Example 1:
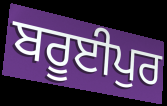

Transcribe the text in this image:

ਬਰੂਈਪੁਰ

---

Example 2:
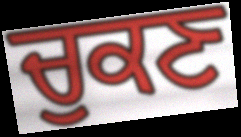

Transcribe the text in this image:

ਚੁਕਣ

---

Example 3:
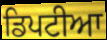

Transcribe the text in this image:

ਡਿਪਟੀਆ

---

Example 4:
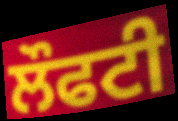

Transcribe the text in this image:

ਲੌਫਟੀ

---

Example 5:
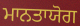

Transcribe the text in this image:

ਮਾਨਤਾਯੋਗ